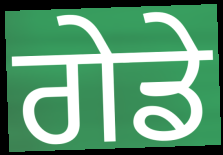
ਗੇਡੇ